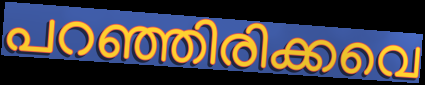
പറഞ്ഞിരിക്കവെ